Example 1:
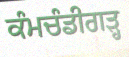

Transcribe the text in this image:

ਕੰਮਚੰਡੀਗੜ੍ਹ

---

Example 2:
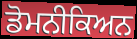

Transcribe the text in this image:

ਡੋਮਨੀਕਿਅਨ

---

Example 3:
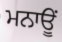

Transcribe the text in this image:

ਮਨਾਊਂ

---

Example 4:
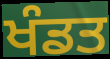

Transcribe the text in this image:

ਖੰਡਤ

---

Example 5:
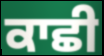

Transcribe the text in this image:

ਕਾਛੀ